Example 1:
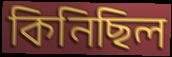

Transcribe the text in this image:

কিনিছিল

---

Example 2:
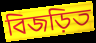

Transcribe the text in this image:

বিজড়িত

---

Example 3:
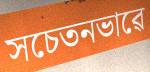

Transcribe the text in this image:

সচেতনভাৱে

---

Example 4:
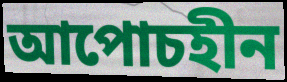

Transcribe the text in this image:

আপোচহীন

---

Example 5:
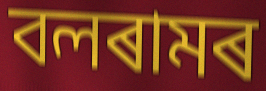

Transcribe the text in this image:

বলৰামৰ